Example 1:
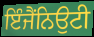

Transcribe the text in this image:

ਇੰਜੈਂਨਿਉਟੀ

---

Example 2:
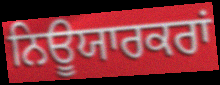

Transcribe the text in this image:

ਨਿਊਯਾਰਕਰਾਂ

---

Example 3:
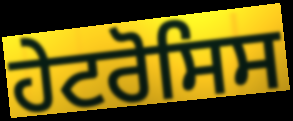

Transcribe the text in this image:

ਹੇਟਰੋਸਿਸ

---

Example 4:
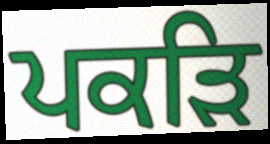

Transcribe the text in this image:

ਪਕੜਿ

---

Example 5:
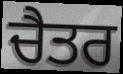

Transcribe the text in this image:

ਚੈਤਰ